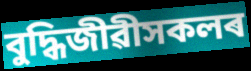
বুদ্ধিজীৱীসকলৰ